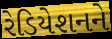
રેડિયેશનને